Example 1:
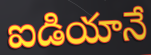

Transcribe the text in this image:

ఐడియానే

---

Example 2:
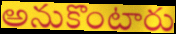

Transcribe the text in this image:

అనుకొంటారు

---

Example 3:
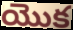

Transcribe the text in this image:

యొక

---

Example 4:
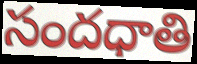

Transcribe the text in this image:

సందధాతి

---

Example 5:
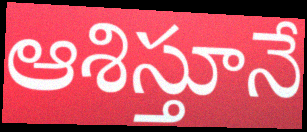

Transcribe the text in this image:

ఆశిస్తూనే